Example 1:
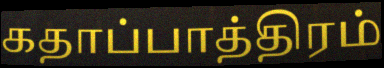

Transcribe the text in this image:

கதாப்பாத்திரம்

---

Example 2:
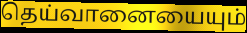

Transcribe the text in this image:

தெய்வானையையும்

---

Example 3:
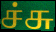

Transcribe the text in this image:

ச்சு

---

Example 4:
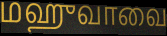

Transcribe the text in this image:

மஹுவாவை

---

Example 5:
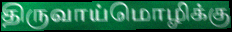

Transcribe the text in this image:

திருவாய்மொழிக்கு